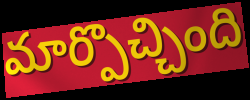
మార్పొచ్చింది